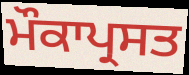
ਮੌਕਾਪ੍ਰਸਤ